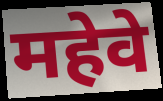
महेवे